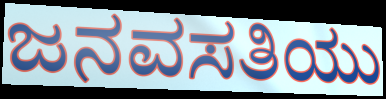
ಜನವಸತಿಯು